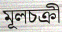
মূলচক্রী